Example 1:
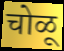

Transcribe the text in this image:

चोळू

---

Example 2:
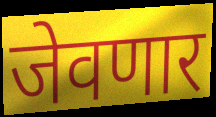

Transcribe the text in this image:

जेवणार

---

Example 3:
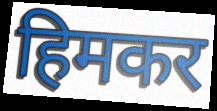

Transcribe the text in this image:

हिमकर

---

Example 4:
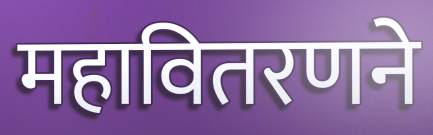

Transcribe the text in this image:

महावितरणने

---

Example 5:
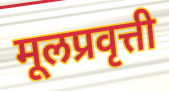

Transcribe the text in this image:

मूलप्रवृत्ती